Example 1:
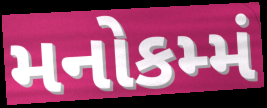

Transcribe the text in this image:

મનોકમ્મં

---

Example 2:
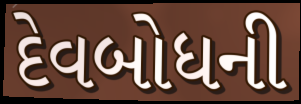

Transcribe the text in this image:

દેવબોધની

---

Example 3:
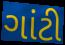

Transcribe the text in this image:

ગાંટી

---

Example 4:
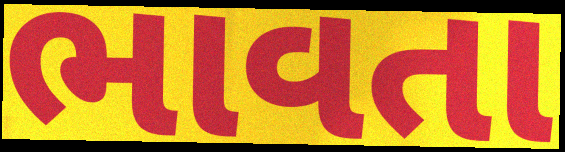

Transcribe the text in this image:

ભાવતા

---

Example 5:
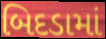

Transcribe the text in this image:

બિદડામાં